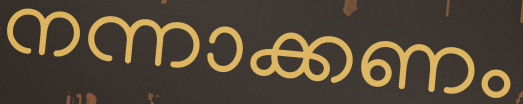
നന്നാക്കണം